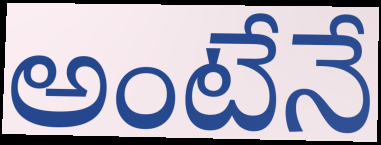
అంటేనే